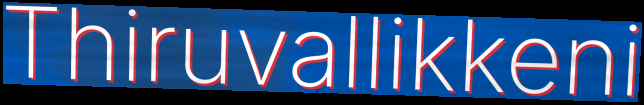
Thiruvallikkeni